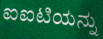
ಐಐಟಿಯನ್ನು